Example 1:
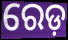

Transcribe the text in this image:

ରେଡ଼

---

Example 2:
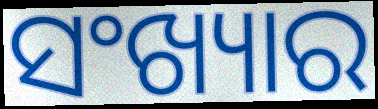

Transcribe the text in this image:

ସଂଖ୍ୟାର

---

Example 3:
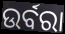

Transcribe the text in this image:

ଉର୍ବରା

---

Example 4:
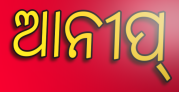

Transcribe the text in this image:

ଆନୀପ୍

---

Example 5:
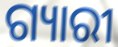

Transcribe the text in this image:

ଗ୍ୟାରୀ